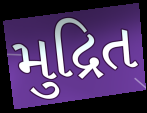
મુદ્રિત